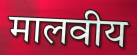
मालवीय